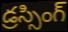
డ్రస్సింగ్